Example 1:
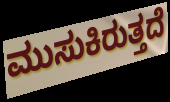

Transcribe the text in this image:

ಮುಸುಕಿರುತ್ತದೆ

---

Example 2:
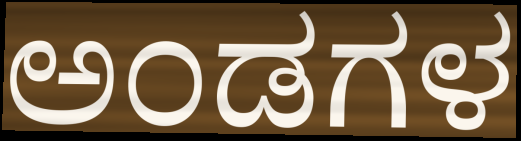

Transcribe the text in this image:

ಅಂಡಗಳ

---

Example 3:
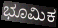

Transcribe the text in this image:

ಭೂಮಿಕ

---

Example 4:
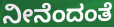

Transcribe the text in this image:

ನೀನೆಂದಂತೆ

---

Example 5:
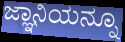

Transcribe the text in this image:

ಜ್ಞಾನಿಯನ್ನೂ